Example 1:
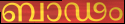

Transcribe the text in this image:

ബാഢം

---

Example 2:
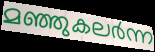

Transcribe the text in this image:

മഞ്ഞുകലർന്ന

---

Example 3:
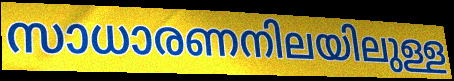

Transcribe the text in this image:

സാധാരണനിലയിലുള്ള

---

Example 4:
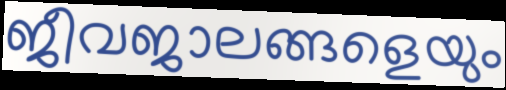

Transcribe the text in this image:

ജീവജാലങ്ങളെയും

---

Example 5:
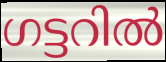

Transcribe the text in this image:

ഗട്ടറിൽ